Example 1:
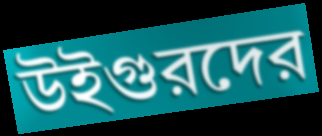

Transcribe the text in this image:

উইগুরদের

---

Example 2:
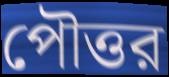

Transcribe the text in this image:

পৌত্তর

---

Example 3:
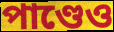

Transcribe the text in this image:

পাণ্ডেও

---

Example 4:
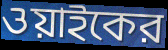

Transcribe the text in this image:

ওয়াইকের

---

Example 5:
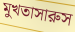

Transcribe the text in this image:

মুখতাসারুস